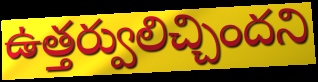
ఉత్తర్వులిచ్చిందని